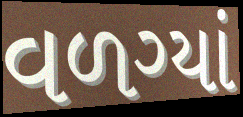
વળગ્યાં